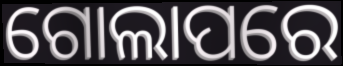
ଗୋଲାପରେ